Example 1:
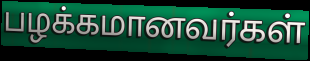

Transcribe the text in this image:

பழக்கமானவர்கள்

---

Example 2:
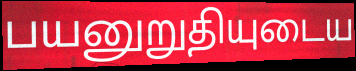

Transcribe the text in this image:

பயனுறுதியுடைய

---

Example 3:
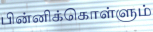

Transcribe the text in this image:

பின்னிக்கொள்ளும்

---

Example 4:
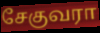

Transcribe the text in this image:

சேகுவரா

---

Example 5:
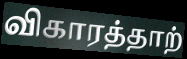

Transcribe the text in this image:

விகாரத்தாற்